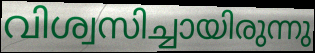
വിശ്വസിച്ചായിരുന്നു